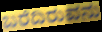
ಬರೆದಿರುವನು